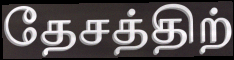
தேசத்திற்